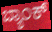
ಬ್ಯಾಂಕ್